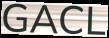
GACL